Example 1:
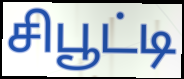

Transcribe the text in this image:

சிபூட்டி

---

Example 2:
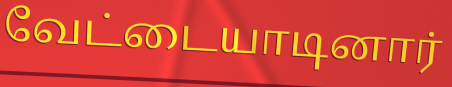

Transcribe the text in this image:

வேட்டையாடினார்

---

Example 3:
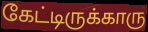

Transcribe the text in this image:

கேட்டிருக்காரு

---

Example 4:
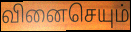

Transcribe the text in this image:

வினைசெயும்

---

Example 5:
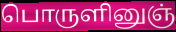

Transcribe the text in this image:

பொருளினுஞ்